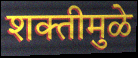
शक्तीमुळे